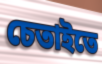
চেতাইতে